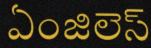
ఏంజిలెస్